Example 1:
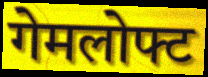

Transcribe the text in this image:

गेमलोफ्ट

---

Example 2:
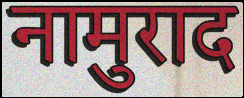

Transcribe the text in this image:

नामुराद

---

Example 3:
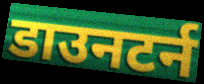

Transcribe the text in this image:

डाउनटर्न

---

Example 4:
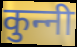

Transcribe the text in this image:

कुन्नी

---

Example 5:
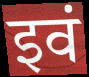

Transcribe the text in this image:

इवं